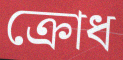
ক্রোধ